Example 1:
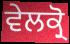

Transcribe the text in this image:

ਵੇਲਕ੍ਰੋ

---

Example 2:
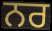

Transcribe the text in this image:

ਨਰ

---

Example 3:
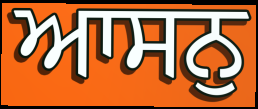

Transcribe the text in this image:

ਆਸਨੁ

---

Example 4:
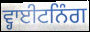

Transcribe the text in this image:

ਵ੍ਹਾਈਟਨਿੰਗ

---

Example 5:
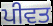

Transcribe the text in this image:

ਪੀਵਤ